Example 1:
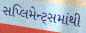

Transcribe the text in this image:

સપ્લિમેન્ટ્સમાંથી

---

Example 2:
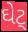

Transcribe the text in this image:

ઘેટ્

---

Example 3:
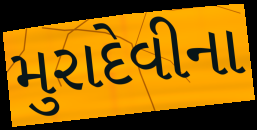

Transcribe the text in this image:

મુરાદેવીના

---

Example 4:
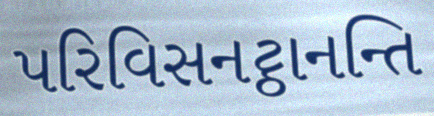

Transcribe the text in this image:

પરિવિસનટ્ઠાનન્તિ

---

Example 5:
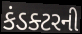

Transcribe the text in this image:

કંડક્ટરની